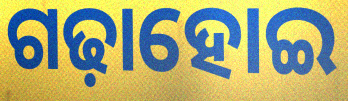
ଗଢ଼ାହୋଇ